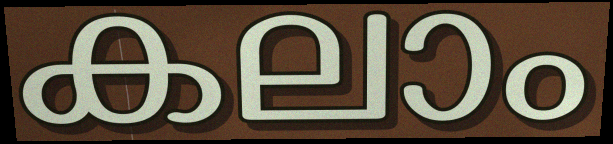
കലാം